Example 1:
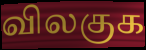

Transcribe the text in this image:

விலகுக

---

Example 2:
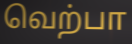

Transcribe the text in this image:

வெற்பா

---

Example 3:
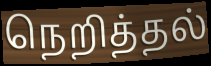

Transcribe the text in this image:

நெறித்தல்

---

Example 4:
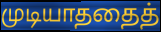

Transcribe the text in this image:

முடியாததைத்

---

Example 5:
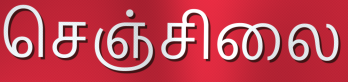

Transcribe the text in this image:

செஞ்சிலை